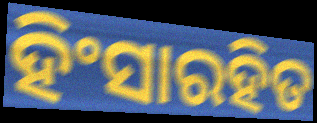
ହିଂସାରହିତ